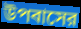
উপবাসের